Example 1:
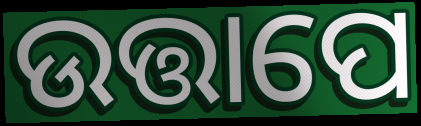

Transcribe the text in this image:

ଉତ୍ତାପେ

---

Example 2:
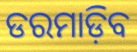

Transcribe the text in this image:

ଡରମାଡ଼ିବ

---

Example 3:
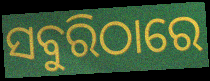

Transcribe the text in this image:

ସବୁରିଠାରେ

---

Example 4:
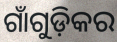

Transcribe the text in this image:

ଗାଁଗୁଡ଼ିକର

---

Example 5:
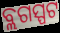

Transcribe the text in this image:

ବ୍ଲଗସ୍ପଟ